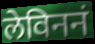
लेविननं